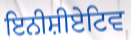
ਇਨੀਸ਼ੀਏਟਿਵ